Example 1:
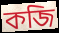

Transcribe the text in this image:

কজি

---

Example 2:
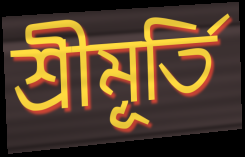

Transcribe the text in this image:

শ্রীমূর্তি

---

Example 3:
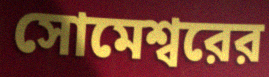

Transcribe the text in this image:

সোমেশ্বরের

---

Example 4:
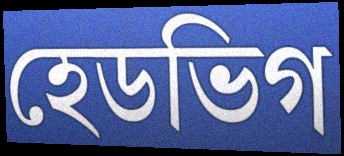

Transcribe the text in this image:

হেডভিগ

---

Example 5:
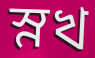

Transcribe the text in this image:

স্নখ